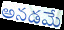
అనడమే